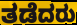
ತಡೆದರು